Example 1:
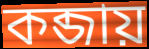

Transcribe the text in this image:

কব্জায়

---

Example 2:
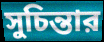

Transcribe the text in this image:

সুচিন্তার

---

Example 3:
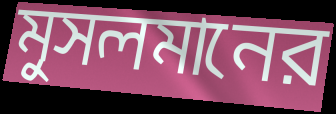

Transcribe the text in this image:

মুসলমানের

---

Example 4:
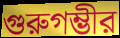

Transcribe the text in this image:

গুরুগম্ভীর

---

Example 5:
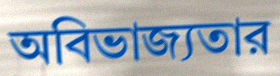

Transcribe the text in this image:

অবিভাজ্যতার